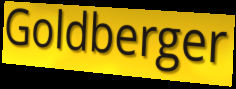
Goldberger